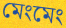
মেংমেং